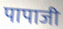
पापाजी